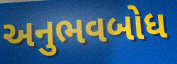
અનુભવબોધ